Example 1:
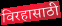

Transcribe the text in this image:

विरहासाठी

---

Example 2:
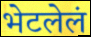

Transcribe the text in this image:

भेटलेलं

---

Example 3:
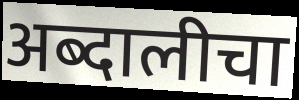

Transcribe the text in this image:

अब्दालीचा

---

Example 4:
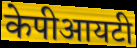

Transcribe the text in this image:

केपीआयटी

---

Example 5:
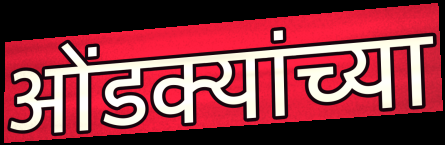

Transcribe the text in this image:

ओंडक्यांच्या